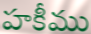
హకీము